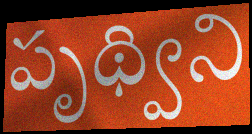
పృథ్విని